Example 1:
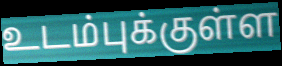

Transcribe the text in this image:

உடம்புக்குள்ள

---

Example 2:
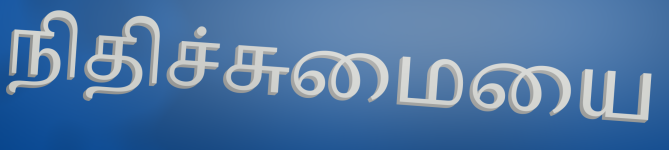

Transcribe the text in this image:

நிதிச்சுமையை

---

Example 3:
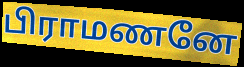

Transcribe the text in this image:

பிராமணனே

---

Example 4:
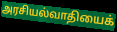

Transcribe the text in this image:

அரசியல்வாதியைக்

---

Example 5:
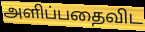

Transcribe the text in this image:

அளிப்பதைவிட